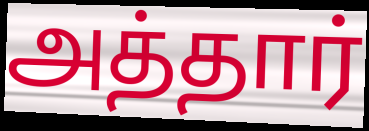
அத்தார்